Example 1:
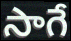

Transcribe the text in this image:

సాగే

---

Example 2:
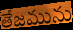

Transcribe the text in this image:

తేజమును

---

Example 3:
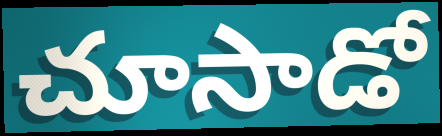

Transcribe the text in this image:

చూసాడో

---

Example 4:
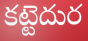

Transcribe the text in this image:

కట్టెదుర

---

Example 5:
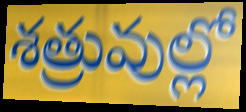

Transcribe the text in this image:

శత్రువుల్లో